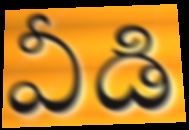
వీడి